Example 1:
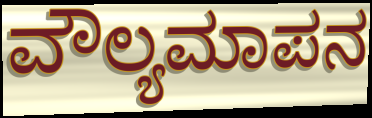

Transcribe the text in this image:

ವೌಲ್ಯಮಾಪನ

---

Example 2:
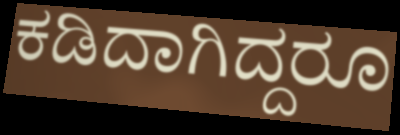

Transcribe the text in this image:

ಕಡಿದಾಗಿದ್ದರೂ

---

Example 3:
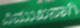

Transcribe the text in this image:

ವಿಮುಖನಾಗಿ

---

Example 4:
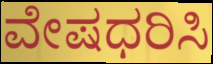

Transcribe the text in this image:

ವೇಷಧರಿಸಿ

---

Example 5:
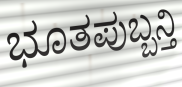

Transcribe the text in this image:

ಭೂತಪುಬ್ಬನ್ತಿ